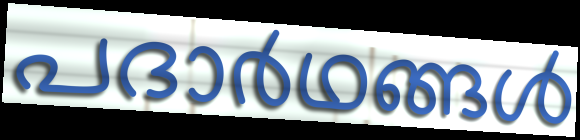
പദാർഥങ്ങൾ